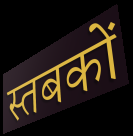
स्तबकों